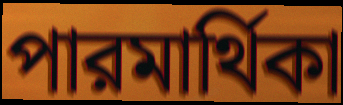
পারমার্থিকা